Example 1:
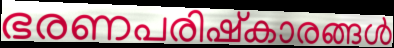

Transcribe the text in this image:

ഭരണപരിഷ്കാരങ്ങൾ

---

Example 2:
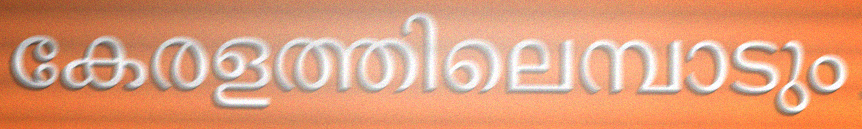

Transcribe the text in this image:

കേരളത്തിലെമ്പാടും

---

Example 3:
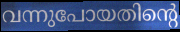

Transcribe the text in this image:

വന്നുപോയതിന്റെ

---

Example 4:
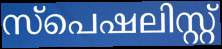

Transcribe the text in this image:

സ്പെഷലിസ്റ്റ്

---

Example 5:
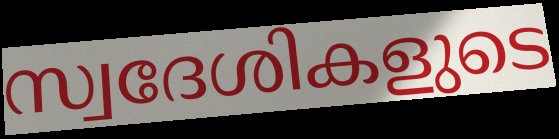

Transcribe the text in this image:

സ്വദേശികളുടെ